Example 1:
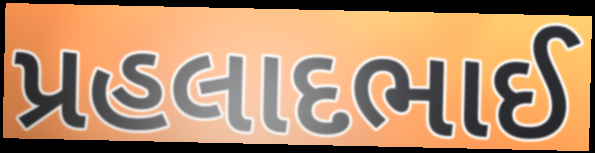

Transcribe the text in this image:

પ્રહલાદભાઈ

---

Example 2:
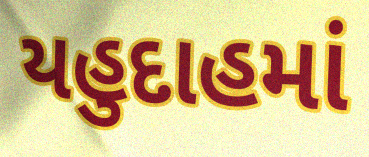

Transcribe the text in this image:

યહુદાહમાં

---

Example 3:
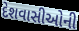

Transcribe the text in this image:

દેશવાસીઓની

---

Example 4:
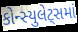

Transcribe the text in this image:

કોન્સ્યુલેટ્સમાં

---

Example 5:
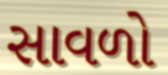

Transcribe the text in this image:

સાવળો